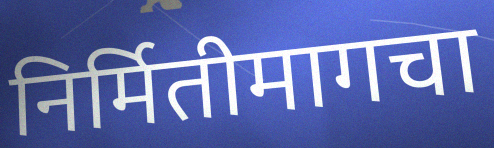
निर्मितीमागचा